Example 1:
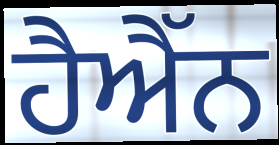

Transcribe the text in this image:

ਹੈਐੱਨ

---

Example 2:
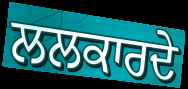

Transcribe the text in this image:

ਲਲਕਾਰਦੇ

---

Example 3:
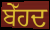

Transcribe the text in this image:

ਬੇੱਹਦ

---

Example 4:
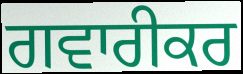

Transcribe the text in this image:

ਗਵਾਰੀਕਰ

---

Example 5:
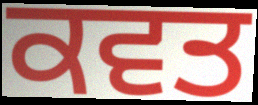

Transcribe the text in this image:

ਕਵਤ